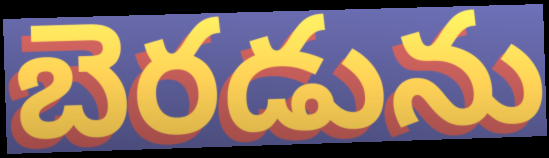
బెరడును